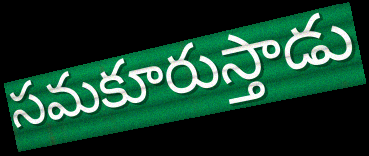
సమకూరుస్తాడు